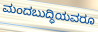
ಮಂದಬುದ್ಧಿಯವರೂ